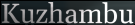
Kuzhambu